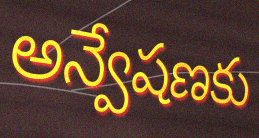
అన్వేషణకు